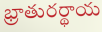
భ్రాతురర్థాయ